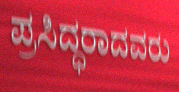
ಪ್ರಸಿದ್ಧರಾದವರು